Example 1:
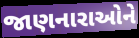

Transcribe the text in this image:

જાણનારાઓને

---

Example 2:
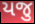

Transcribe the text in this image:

યજુ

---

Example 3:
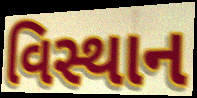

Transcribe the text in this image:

વિસ્થાન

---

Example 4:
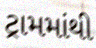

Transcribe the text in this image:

ટ્રામમાંથી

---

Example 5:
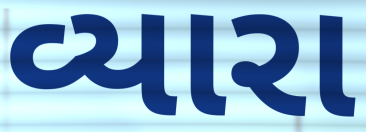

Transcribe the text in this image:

વ્યારા